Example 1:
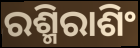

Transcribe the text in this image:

ରଶ୍ମିରାଶିଂ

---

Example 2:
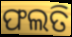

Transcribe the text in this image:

ଫଲତି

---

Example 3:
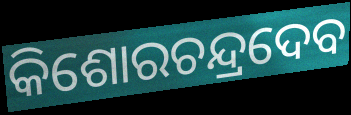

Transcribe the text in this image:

କିଶୋରଚନ୍ଦ୍ରଦେବ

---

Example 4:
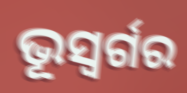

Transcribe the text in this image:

ଭୂସ୍ବର୍ଗର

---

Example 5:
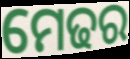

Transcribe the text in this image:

ମେଢର